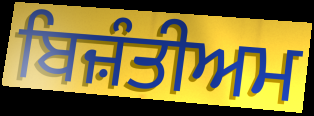
ਬਿਜ਼ੰਤੀਅਮ